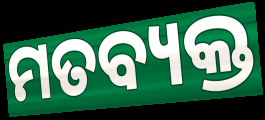
ମତବ୍ୟକ୍ତ